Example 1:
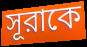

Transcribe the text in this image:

সূরাকে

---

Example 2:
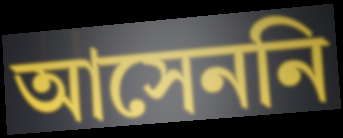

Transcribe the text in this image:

আসেননি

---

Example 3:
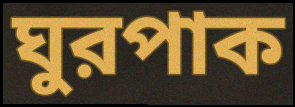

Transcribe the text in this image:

ঘুরপাক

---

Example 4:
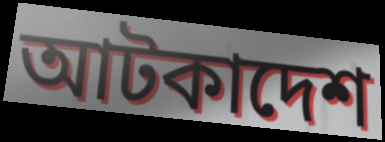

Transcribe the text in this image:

আটকাদেশ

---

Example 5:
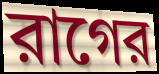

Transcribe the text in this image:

রাগের